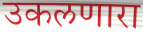
उकलणारा